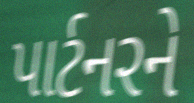
પાર્ટનરને